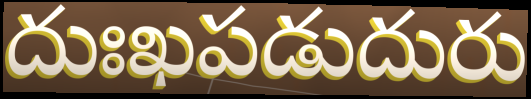
దుఃఖపడుదురు